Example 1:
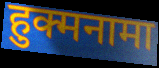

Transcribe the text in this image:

हुक्मनामा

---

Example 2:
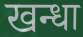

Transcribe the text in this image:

खन्धा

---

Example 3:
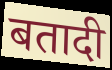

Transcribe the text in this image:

बतादी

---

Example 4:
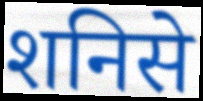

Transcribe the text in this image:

शनिसे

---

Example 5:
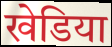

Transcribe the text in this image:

खेडिया